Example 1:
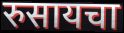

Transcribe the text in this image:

रुसायचा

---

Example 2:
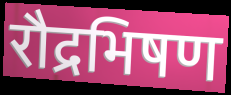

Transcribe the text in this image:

रौद्रभिषण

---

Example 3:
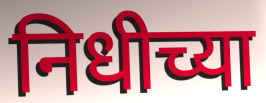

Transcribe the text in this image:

निधीच्या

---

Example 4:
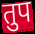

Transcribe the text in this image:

तुप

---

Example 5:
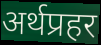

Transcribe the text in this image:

अर्थप्रहर